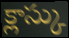
క్లాస్కు